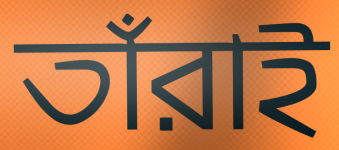
তাঁরাই